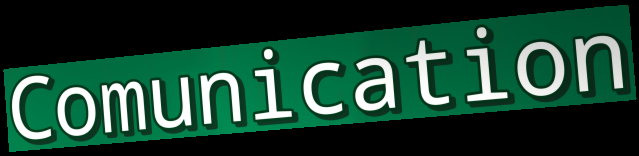
Comunication